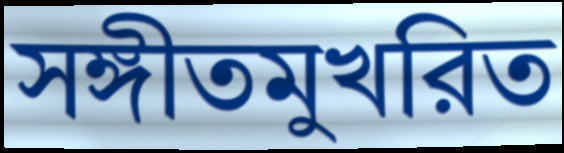
সঙ্গীতমুখরিত